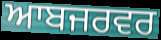
ਆਬਜਰਵਰ